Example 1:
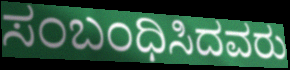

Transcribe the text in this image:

ಸಂಬಂಧಿಸಿದವರು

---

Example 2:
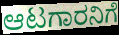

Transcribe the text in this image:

ಆಟಗಾರನಿಗೆ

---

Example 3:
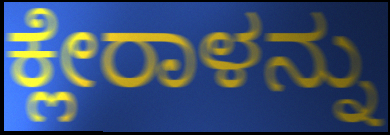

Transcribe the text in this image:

ಕ್ಲೇರಾಳನ್ನು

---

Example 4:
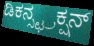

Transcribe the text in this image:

ಡಿಕನ್ಸ್ಟ್ರಕ್ಷನ್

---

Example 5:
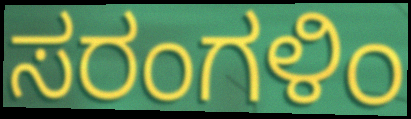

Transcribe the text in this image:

ಸರಂಗಳಿಂ